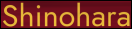
Shinohara